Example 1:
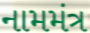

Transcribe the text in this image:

નામમંત્ર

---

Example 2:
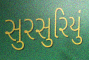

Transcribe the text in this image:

સુરસુરિયું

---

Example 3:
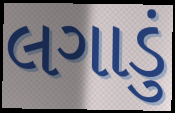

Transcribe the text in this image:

લગાડું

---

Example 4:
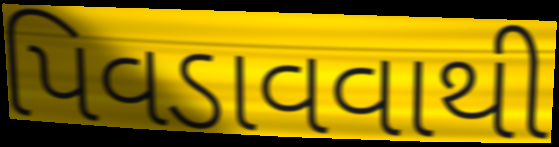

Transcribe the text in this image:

પિવડાવવાથી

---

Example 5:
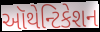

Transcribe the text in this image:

ઑથેન્ટિકેશન